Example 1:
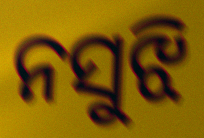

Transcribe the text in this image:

ନସୁଝି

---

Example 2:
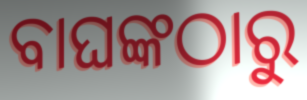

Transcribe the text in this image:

ବାଘଙ୍କଠାରୁ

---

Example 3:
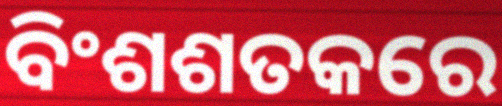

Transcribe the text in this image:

ବିଂଶଶତକରେ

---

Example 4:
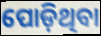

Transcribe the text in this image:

ପୋଡ଼ିଥିବା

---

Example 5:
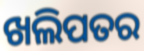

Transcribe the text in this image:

ଖଲିପତର